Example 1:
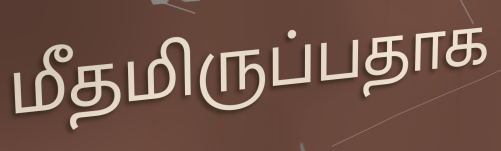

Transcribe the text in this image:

மீதமிருப்பதாக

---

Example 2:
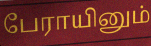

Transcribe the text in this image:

பேராயினும்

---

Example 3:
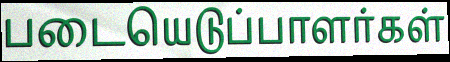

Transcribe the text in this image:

படையெடுப்பாளர்கள்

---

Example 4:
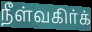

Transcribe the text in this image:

நீள்வகிர்க்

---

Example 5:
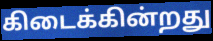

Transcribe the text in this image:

கிடைக்கின்றது